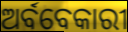
ଅର୍ବବେକାରୀ